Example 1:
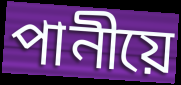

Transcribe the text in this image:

পানীয়ে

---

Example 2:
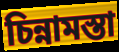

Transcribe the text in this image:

চিন্নামস্তা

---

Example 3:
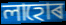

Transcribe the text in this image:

লাহোৰ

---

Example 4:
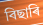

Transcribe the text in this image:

বিছাৰি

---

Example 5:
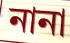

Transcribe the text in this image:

নানা